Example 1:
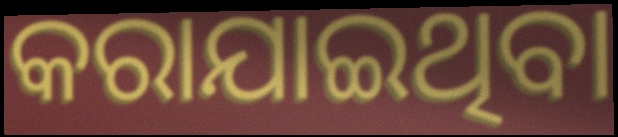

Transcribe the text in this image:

କରାଯାଇଥିବା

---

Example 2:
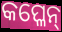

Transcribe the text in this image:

କପ୍ଳେନ୍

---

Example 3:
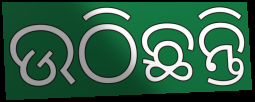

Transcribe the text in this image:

ଉଠିଛନ୍ତି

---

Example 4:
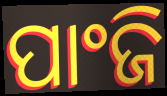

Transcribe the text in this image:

ପାଂଜି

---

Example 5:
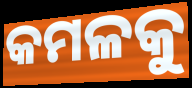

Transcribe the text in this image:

କମଳକୁ